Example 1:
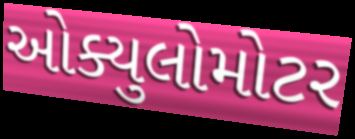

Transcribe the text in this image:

ઓક્યુલોમોટર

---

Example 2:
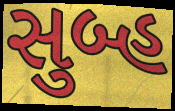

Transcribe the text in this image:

સુબ્હ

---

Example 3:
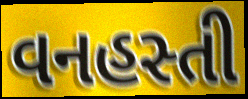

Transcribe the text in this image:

વનહસ્તી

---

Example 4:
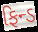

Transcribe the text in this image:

ફિન્ડ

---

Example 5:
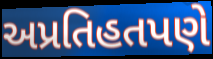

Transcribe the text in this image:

અપ્રતિહતપણે